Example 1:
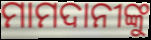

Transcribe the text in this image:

ମାମଦାନୀଙ୍କୁ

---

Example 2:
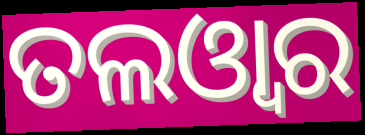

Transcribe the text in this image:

ତଲଓ୍ୱାର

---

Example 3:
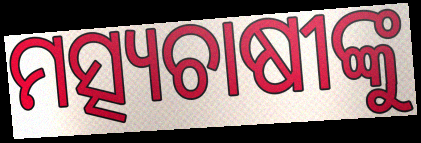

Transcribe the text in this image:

ମତ୍ସ୍ୟଚାଷୀଙ୍କୁ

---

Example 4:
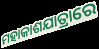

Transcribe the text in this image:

ମହାକାଶଯାତ୍ରାରେ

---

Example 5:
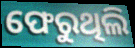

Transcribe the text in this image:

ଫେରୁଥିଲି